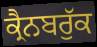
ਕ੍ਰੈਨਬਰੁੱਕ